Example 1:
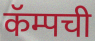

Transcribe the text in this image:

कॅम्पची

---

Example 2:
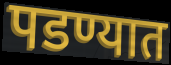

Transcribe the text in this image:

पडण्यात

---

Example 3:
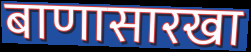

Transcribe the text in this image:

बाणासारखा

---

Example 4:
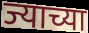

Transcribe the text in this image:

ज्याच्या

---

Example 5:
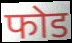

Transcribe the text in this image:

फोड